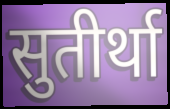
सुतीर्था